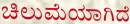
ಚಿಲುಮೆಯಾಗಿದೆ